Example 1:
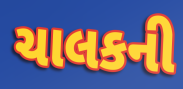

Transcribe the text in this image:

ચાલકની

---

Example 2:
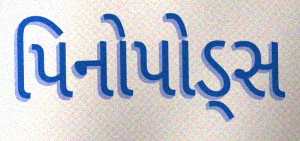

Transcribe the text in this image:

પિનોપોડ્સ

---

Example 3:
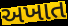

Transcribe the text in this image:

અખાત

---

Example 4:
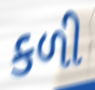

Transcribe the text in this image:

કળી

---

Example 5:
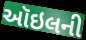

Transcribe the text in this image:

ઑઇલની